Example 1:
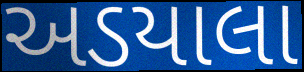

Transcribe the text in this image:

અડયાલા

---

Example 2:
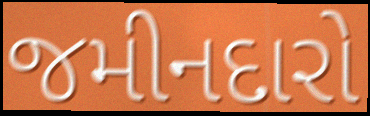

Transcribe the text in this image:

જમીનદારો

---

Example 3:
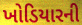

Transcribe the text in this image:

ખોડિયારની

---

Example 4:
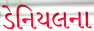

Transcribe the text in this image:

ડેનિયલના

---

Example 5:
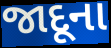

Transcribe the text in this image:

જાદૂના